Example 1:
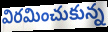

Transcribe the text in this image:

విరమించుకున్న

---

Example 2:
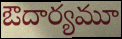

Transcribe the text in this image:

ఔదార్యమూ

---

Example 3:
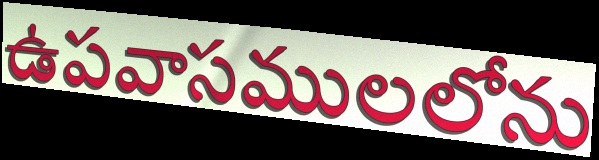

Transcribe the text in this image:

ఉపవాసములలోను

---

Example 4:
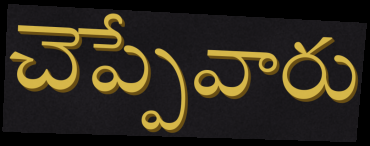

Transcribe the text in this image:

చెప్పేవారు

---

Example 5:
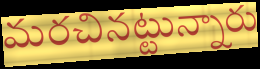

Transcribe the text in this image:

మరచినట్టున్నారు